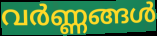
വർണ്ണങ്ങൾ